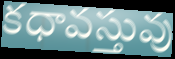
కధావస్తువు